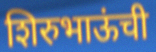
शिरुभाऊंची